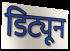
डिट्यून